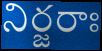
నిర్జరాః